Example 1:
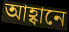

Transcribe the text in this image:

আহ্বানে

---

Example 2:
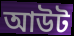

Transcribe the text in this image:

আউট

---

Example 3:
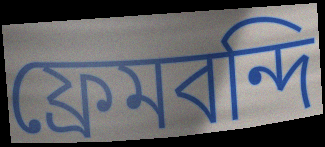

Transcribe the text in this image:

ফ্রেমবন্দি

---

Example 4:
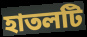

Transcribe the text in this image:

হাতলটি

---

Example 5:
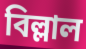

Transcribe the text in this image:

বিল্লাল